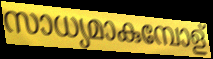
സാധ്യമാകുമ്പോള്